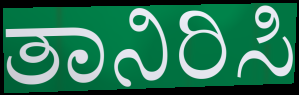
ತಾನಿರಿಸಿ